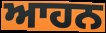
ਆਹਨ